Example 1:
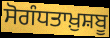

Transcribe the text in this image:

ਸੋਗੰਧਤਾਖ਼ੁਸ਼ਬੂ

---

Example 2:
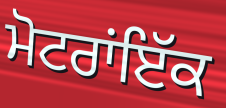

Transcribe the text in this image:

ਮੋਟਰਾਂਇੱਕ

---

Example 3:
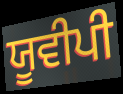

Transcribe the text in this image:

ਯੂਵੀਪੀ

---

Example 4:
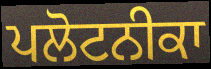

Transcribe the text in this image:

ਪਲੋਟਨੀਕਾ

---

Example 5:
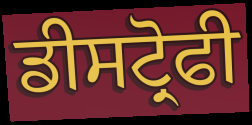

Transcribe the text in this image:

ਡੀਸਟ੍ਰੋਫੀ